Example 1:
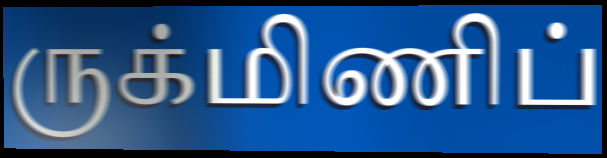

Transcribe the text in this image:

ருக்மிணிப்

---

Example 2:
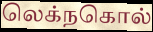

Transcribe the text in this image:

லெக்நகொல்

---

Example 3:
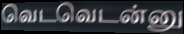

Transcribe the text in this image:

வெடவெடன்னு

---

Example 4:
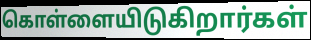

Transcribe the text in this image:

கொள்ளையிடுகிறார்கள்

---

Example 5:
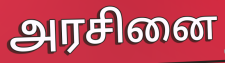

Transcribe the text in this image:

அரசினை